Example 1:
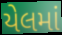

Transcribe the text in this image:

યેલમાં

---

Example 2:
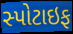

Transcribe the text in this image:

સ્પોટાઇફ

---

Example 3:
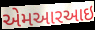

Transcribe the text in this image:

એમઆરઆઇ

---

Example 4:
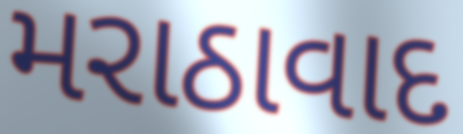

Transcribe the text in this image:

મરાઠાવાદ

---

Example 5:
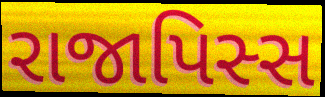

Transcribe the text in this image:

રાજાપિસ્સ